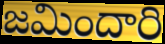
జమిందారి